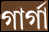
গার্গা